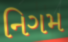
નિગમ